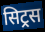
सिट्रस